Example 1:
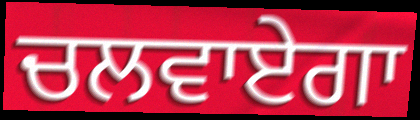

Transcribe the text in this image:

ਚਲਵਾਏਗਾ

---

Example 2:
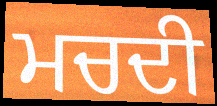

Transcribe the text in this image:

ਮਚਦੀ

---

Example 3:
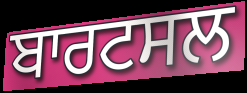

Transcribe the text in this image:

ਬਾਰਟਸਲ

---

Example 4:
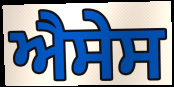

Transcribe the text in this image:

ਐਸੇਸ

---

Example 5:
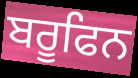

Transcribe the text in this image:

ਬਰੂਫਿਨ